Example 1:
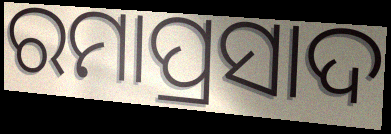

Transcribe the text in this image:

ରମାପ୍ରସାଦ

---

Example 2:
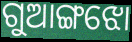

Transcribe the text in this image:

ଗୁଆଙ୍ଗଝୋ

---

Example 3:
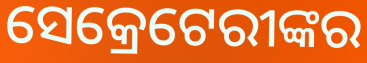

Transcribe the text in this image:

ସେକ୍ରେଟେରୀଙ୍କର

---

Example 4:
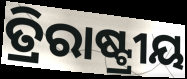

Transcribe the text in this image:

ତ୍ରିରାଷ୍ଟ୍ରୀୟ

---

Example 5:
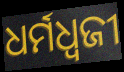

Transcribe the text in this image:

ଧର୍ମଧ୍ୱଜୀ